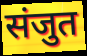
संजुत